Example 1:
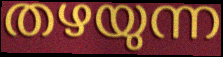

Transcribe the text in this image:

തഴയുന്ന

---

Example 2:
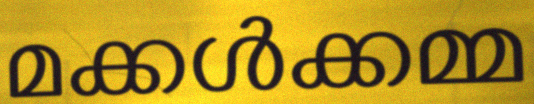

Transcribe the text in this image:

മക്കൾക്കമ്മ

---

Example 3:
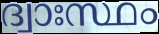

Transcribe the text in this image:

ദ്വാഃസ്ഥം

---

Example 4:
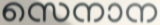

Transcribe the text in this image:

സെനാന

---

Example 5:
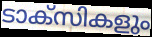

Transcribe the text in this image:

ടാക്സികളും